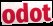
odot